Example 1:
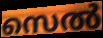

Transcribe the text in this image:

സെൽ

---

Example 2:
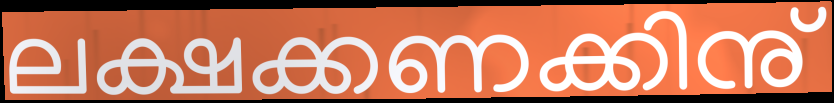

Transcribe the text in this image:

ലക്ഷക്കണക്കിനു്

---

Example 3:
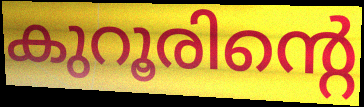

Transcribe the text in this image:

കുറൂരിന്റെ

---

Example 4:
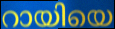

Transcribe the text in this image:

റായിയെ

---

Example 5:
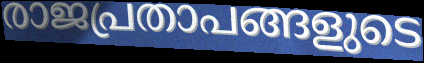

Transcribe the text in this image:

രാജപ്രതാപങ്ങളുടെ